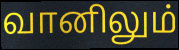
வானிலும்